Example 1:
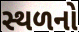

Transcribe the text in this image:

સ્થળનો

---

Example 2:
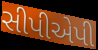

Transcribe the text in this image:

સીપીએપી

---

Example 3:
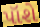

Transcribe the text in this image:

પૉશે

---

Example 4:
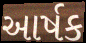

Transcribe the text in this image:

આર્ષક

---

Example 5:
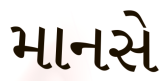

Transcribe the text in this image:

માનસે